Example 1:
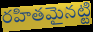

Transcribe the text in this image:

రహితమైనట్టి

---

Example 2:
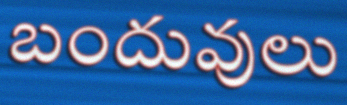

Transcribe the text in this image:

బందువులు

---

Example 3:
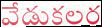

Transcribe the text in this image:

వేడుకలర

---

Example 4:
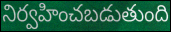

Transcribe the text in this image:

నిర్వహించబడుతుంది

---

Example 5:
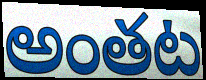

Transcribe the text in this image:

అంతట